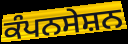
ਕੰਪਨਸੇਸ਼ਨ